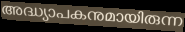
അദ്ധ്യാപകനുമായിരുന്ന